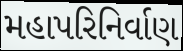
મહાપરિનિર્વાણ